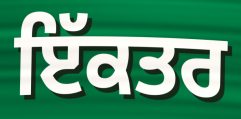
ਇੱਕਤਰ